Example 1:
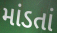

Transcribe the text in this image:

માંડતાં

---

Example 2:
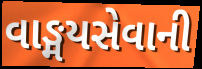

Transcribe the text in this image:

વાઙ્મયસેવાની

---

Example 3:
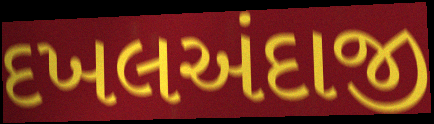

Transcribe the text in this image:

દખલઅંદાજી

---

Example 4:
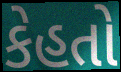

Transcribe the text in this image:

કેહતો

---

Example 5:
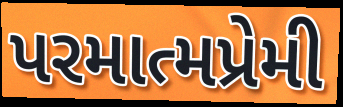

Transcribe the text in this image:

પરમાત્મપ્રેમી